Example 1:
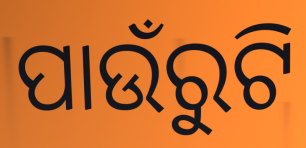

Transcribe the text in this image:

ପାଉଁରୁଟି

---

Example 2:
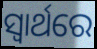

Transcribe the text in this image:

ସ୍ଵାର୍ଥରେ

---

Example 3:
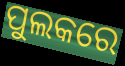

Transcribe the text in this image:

ପୁଲକରେ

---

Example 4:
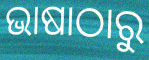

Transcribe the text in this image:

ଭାଷାଠାରୁ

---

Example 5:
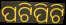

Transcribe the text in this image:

ପଟିପିଟି